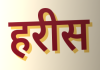
हरीस